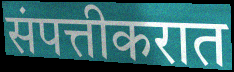
संपत्तीकरात